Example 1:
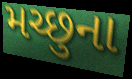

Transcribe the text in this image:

મચ્છુના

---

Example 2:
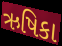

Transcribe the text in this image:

ઋષિકા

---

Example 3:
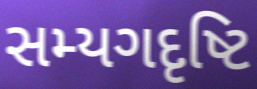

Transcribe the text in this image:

સમ્યગદૃષ્ટિ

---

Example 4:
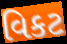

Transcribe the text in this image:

વિકટ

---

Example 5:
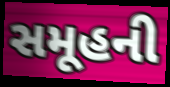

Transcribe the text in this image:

સમૂહની